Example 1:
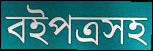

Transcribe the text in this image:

বইপত্রসহ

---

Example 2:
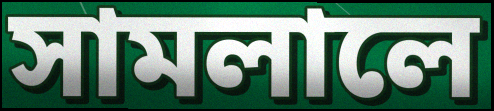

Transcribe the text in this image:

সামলালে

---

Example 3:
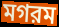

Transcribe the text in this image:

মগরম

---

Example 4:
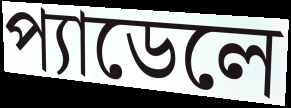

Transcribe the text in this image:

প্যাডেলে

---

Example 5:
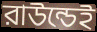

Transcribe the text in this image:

রাউন্ডেই